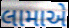
લામાએ